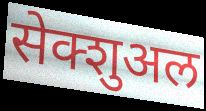
सेक्शुअल